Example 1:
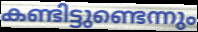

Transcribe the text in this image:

കണ്ടിട്ടുണ്ടെന്നും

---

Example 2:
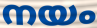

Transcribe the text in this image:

നയം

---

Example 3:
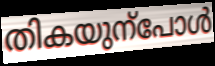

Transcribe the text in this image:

തികയുന്പോൾ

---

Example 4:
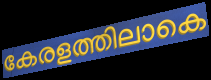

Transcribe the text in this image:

കേരളത്തിലാകെ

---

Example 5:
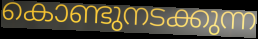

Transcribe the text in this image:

കൊണ്ടുനടക്കുന്ന